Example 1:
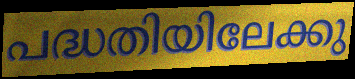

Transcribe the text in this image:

പദ്ധതിയിലേക്കു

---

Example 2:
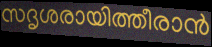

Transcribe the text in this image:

സദൃശരായിത്തീരാൻ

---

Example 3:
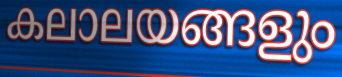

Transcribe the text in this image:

കലാലയങ്ങളും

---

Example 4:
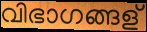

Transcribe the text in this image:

വിഭാഗങ്ങള്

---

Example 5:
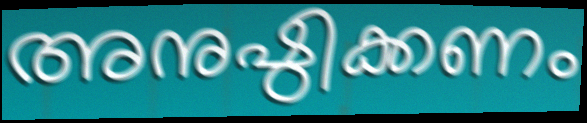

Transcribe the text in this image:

അനുഷ്ഠിക്കണം